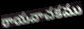
రాయవాచకము